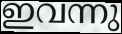
ഇവന്നു